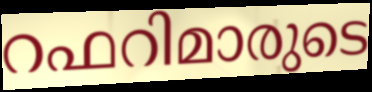
റഫറിമാരുടെ